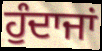
ਹੁੰਦਾਜਾਂ